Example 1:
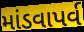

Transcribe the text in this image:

માંડવાપર્વ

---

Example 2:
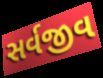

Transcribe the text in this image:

સર્વજીવ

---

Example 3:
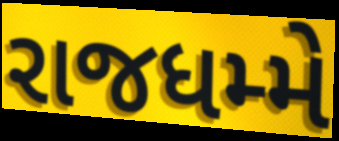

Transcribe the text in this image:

રાજધમ્મે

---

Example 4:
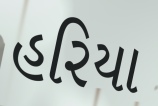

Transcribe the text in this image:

હરિયા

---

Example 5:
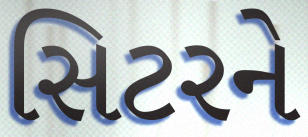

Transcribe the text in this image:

સિટરને